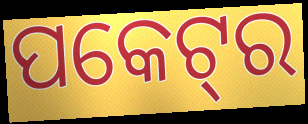
ପକେଟ୍‌ର